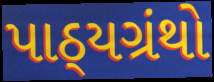
પાઠ્યગ્રંથો